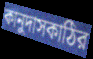
কানুদাসকাঠির